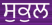
ਸੁਕੁਲ